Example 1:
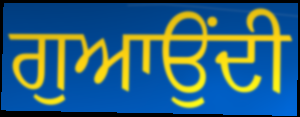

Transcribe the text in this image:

ਗੁਆਉਂਦੀ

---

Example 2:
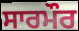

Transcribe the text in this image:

ਸਾਰਮੌਰ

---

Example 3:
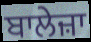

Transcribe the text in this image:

ਬਾਲੇਜ਼ਾ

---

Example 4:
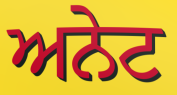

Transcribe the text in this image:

ਅਨੇਟ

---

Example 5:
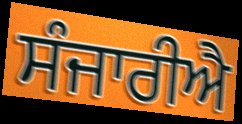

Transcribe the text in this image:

ਸੰਜਾਰੀਐ